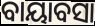
ବାୟାବସା